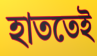
হাততেই